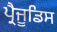
ਪ੍ਰੈਜੂਡਿਸ